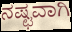
ನಷ್ಟವಾಗಿ